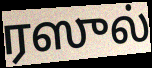
ரஸுல்